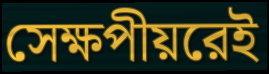
সেক্ষপীয়রেই